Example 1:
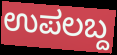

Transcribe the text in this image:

ಉಪಲಬ್ದ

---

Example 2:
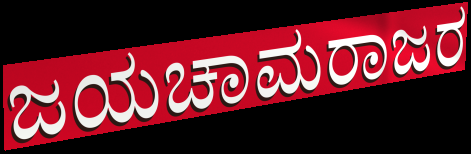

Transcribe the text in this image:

ಜಯಚಾಮರಾಜರ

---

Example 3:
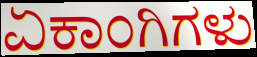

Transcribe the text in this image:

ಏಕಾಂಗಿಗಳು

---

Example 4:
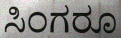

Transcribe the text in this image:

ಸಿಂಗರೂ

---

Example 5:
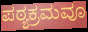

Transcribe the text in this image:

ಪಠ್ಯಕ್ರಮವೂ